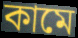
কামে